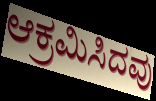
ಆಕ್ರಮಿಸಿದವು